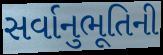
સર્વાનુભૂતિની